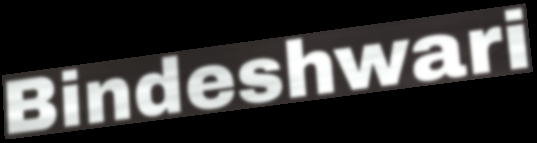
Bindeshwari